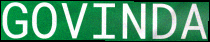
GOVINDA